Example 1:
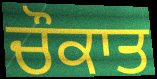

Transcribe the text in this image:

ਚੌਕਾਤ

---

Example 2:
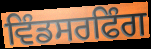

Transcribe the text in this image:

ਵਿੰਡਸਰਫਿੰਗ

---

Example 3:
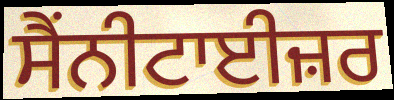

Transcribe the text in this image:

ਸੈਂਨੀਟਾਈਜ਼ਰ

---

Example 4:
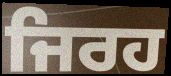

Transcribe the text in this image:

ਜਿਰਹ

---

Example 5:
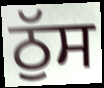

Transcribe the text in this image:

ਠੁੱਸ